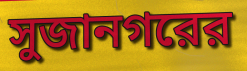
সুজানগরের